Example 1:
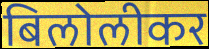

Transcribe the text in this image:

बिलोलीकर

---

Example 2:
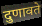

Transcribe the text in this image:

दुणावते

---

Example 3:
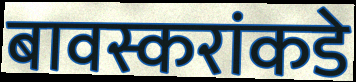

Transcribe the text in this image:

बावस्करांकडे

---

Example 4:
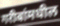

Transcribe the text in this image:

गरीबांमधील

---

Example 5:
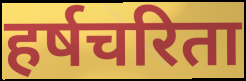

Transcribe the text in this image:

हर्षचरिता